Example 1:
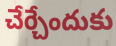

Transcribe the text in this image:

చేర్చేందుకు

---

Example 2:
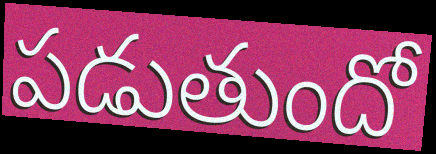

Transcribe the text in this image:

పడుతుందో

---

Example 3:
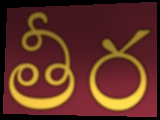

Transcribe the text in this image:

తీర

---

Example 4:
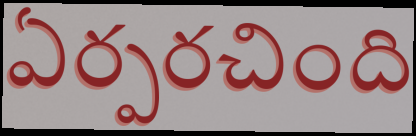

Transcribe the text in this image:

ఏర్పరచింది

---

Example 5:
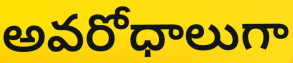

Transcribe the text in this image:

అవరోధాలుగా